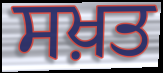
ਸਖ਼ਤ